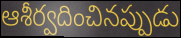
ఆశీర్వదించినప్పుడు